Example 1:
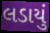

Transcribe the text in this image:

લડાયું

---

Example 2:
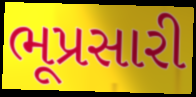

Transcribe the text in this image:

ભૂપ્રસારી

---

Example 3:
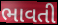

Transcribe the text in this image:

ભાવતી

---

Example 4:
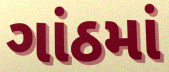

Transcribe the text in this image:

ગાંઠમાં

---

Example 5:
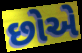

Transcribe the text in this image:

છોએ